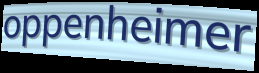
oppenheimer